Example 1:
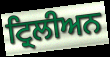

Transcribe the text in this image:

ਟ੍ਰਿਲੀਅਨ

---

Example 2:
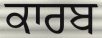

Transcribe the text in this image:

ਕਾਰਬ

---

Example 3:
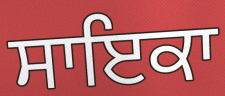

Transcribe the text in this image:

ਸਾਇਕਾ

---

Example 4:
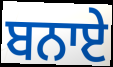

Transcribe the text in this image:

ਬਨਾਏ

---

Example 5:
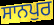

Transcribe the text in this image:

ਸਾਨਪੁਰ